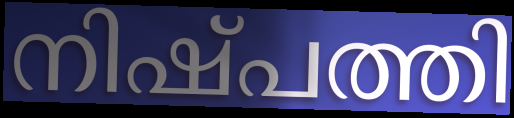
നിഷ്പത്തി